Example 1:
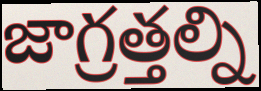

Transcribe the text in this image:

జాగ్రత్తల్ని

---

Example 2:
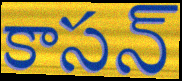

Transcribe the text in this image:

కాసన్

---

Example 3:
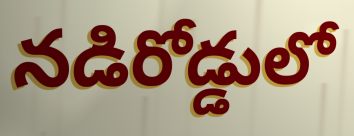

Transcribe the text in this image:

నడిరోడ్డులో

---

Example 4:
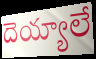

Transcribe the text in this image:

దెయ్యాలే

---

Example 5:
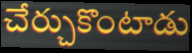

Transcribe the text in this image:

చేర్చుకొంటాడు